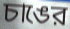
চাঙের